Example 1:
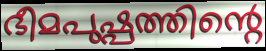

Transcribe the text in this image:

ഭീമപുഷ്പത്തിന്റെ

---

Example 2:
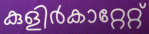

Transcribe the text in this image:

കുളിർകാറ്റേറ്റ്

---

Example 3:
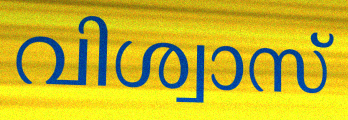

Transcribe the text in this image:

വിശ്വാസ്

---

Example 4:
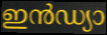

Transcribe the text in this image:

ഇൻഡ്യാ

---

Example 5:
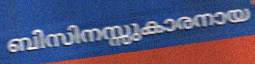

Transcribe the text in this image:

ബിസിനസ്സുകാരനായ